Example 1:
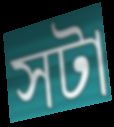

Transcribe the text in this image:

সটা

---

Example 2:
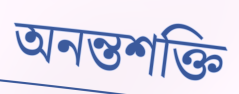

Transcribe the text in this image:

অনন্তশক্তি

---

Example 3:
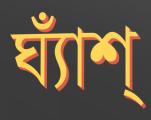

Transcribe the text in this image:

ঘ্যাঁশ্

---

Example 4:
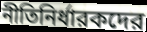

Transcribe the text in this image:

নীতিনির্ধারকদের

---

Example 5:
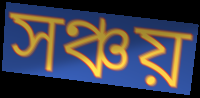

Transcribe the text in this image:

সঞ্চয়